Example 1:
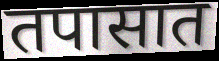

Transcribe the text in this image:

तपासात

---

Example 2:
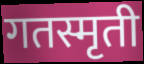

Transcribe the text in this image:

गतस्मृती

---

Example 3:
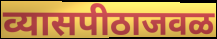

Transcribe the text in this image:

व्यासपीठाजवळ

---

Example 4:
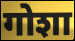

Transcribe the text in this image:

गोशा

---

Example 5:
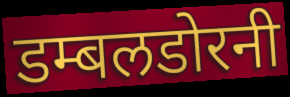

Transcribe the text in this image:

डम्बलडोरनी